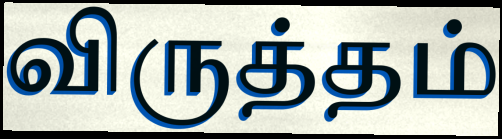
விருத்தம்